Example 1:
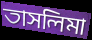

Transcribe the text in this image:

তাসলিমা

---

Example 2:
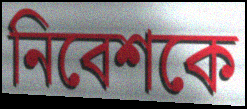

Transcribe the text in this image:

নিবেশকে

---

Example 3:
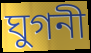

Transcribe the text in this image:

ঘুগনী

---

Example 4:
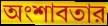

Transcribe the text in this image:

অংশাবতার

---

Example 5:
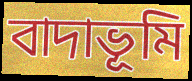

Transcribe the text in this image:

বাদাভূমি